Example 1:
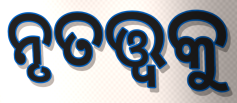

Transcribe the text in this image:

ନୃତତ୍ତ୍ଵକୁ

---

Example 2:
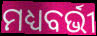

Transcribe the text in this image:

ମଧ୍ଯବର୍ଭୀ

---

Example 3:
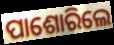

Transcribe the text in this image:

ପାଶୋରିଲେ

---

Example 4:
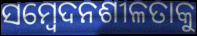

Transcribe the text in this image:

ସମ୍ବେଦନଶୀଳତାକୁ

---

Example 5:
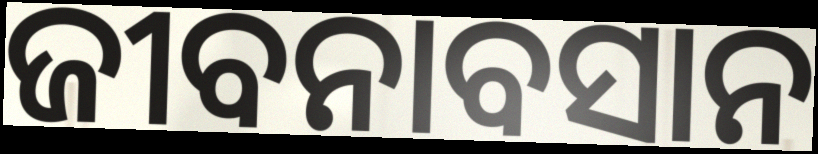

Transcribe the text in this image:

ଜୀବନାବସାନ